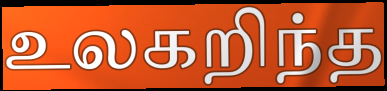
உலகறிந்த